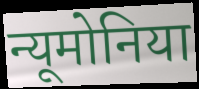
न्यूमोनिया